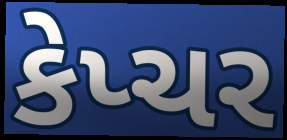
કેપ્ચર